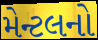
મેન્ટલનો